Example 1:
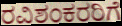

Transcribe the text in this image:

ರವಿಶಂಕರರಿಗೆ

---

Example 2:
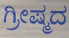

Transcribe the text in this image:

ಗ್ರೀಷ್ಮದ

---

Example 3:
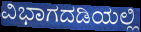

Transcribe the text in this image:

ವಿಭಾಗದಡಿಯಲ್ಲಿ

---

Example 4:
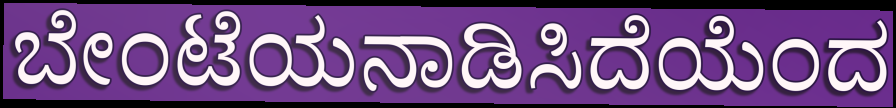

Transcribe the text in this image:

ಬೇಂಟೆಯನಾಡಿಸಿದೆಯೆಂದ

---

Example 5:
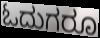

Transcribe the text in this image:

ಓದುಗರೂ